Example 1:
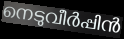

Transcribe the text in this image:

നെടുവീർപ്പിൻ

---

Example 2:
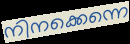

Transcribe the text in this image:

നിനക്കെന്നെ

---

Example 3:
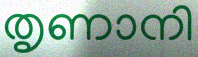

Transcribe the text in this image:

തൃണാനി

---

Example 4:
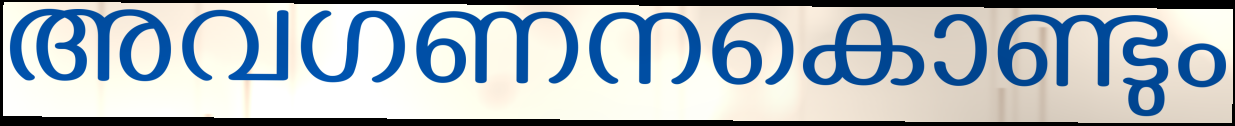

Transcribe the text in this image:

അവഗണനകൊണ്ടും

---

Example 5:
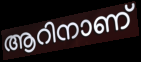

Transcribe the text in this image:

ആറിനാണ്